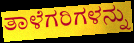
ತಾಳೆಗರಿಗಳನ್ನು